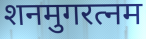
शनमुगरत्नम